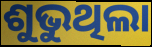
ଶୁଭୁଥିଲା